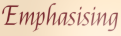
Emphasising